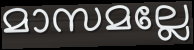
മാസമല്ലേ